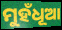
ମୁହଁଧୂଆ